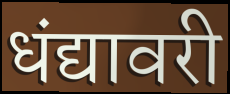
धंद्यावरी